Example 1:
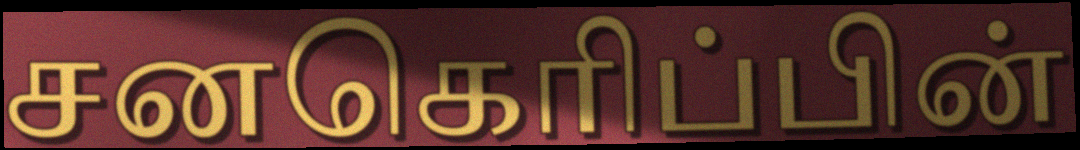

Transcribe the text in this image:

சனகெரிப்பின்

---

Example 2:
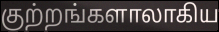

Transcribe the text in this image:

குற்றங்களாலாகிய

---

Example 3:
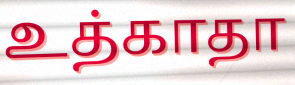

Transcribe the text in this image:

உத்காதா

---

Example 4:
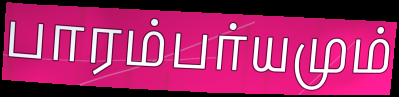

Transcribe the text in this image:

பாரம்பர்யமும்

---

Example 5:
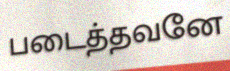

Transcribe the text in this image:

படைத்தவனே